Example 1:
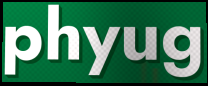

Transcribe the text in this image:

phyug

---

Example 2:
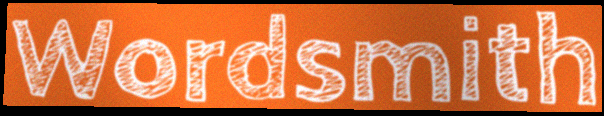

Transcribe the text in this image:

Wordsmith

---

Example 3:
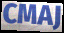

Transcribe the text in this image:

CMAJ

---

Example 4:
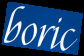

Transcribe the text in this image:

boric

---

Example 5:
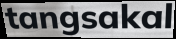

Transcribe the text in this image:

tangsakal